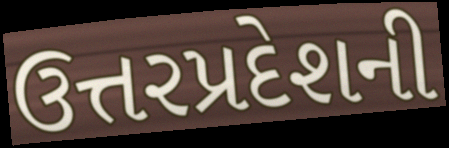
ઉત્તરપ્રદેશની